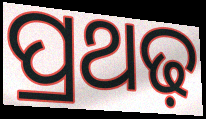
ପ୍ରଥଢ଼